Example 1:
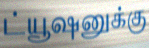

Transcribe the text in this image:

ட்யூஷனுக்கு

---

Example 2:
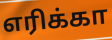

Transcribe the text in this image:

எரிக்கா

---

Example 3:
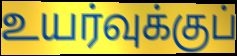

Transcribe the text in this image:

உயர்வுக்குப்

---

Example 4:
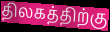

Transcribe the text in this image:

திலகத்திற்கு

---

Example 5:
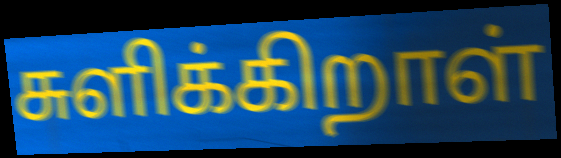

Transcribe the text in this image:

சுளிக்கிறாள்